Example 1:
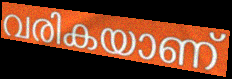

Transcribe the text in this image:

വരികയാണ്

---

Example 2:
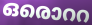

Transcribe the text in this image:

ഒരൊററ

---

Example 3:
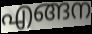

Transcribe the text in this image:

എങ്ങന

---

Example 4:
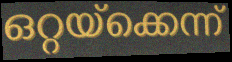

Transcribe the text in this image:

ഒറ്റയ്‌ക്കെന്ന്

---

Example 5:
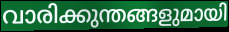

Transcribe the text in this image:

വാരിക്കുന്തങ്ങളുമായി